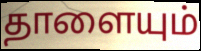
தாளையும்